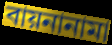
বায়নানামা